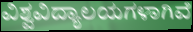
ವಿಶ್ವವಿದ್ಯಾಲಯಗಳಾಗಿವೆ